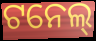
ଟନେଲ୍